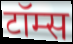
टॉम्स